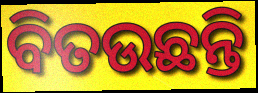
ବିତଉଛନ୍ତି